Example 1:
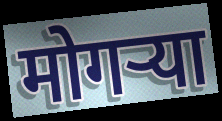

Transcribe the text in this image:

मोगऱ्या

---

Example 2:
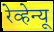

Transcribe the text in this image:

रेव्हेन्यू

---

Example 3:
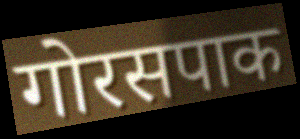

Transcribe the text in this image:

गोरसपाक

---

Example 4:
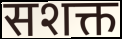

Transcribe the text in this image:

सशक्त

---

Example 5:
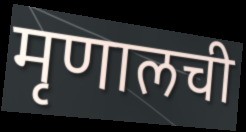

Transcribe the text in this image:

मृणालची